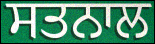
ਸਤਨਾਲ